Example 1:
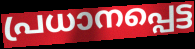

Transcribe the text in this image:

പ്രധാനപ്പെട്ട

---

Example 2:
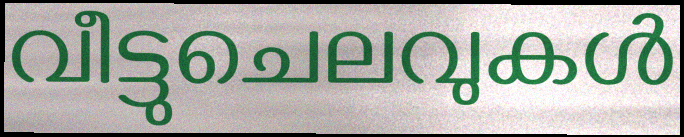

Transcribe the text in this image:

വീട്ടുചെലവുകൾ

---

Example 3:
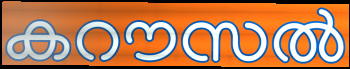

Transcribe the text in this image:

കറൗസൽ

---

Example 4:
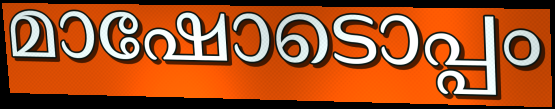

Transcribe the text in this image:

മാഷോടൊപ്പം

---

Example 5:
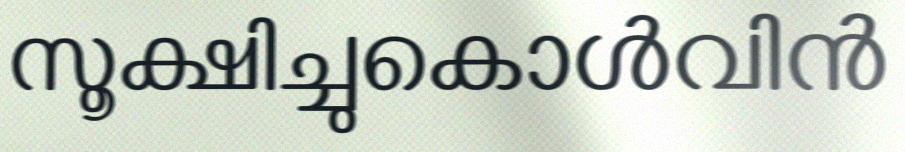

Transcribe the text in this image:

സൂക്ഷിച്ചുകൊൾവിൻ